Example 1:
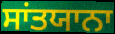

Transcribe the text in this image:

ਸਾਂਤਯਾਨਾ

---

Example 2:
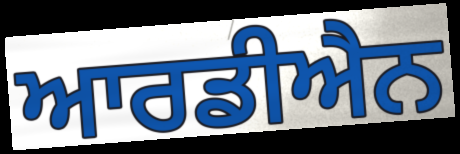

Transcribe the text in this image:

ਆਰਡੀਐਨ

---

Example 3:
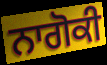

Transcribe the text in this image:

ਨਾਗੋਕੀ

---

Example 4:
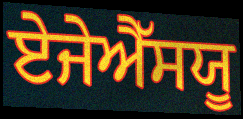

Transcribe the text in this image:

ਏਜੇਐੱਸਯੂ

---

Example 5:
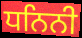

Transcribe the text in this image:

ਧਨਿਨੀ